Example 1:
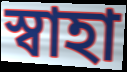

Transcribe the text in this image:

স্বাহা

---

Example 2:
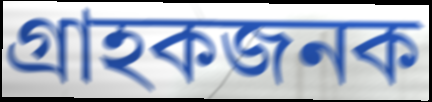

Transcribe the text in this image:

গ্ৰাহকজনক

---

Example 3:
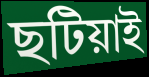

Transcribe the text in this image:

ছটিয়াই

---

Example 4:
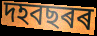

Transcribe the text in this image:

দহবছৰৰ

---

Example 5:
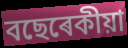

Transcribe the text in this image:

বছেৰেকীয়া